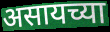
असायच्या